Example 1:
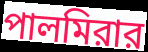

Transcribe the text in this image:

পালমিরার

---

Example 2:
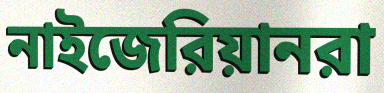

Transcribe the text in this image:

নাইজেরিয়ানরা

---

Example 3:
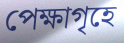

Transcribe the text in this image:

পেক্ষাগৃহে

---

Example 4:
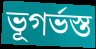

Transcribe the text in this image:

ভূগর্ভস্ত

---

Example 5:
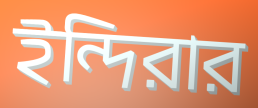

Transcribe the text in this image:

ইন্দিরার